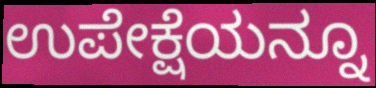
ಉಪೇಕ್ಷೆಯನ್ನೂ